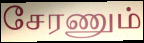
சேரணும்